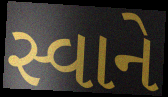
સ્વાને